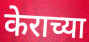
केराच्या